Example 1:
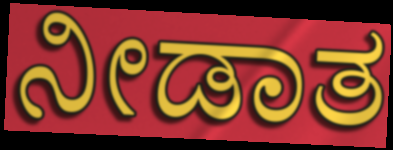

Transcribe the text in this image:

ನೀಡಾತ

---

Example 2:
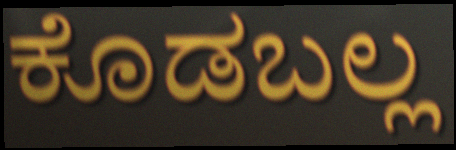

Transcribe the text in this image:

ಕೊಡಬಲ್ಲ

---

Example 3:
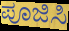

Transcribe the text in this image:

ಪೂಜಿಸಿ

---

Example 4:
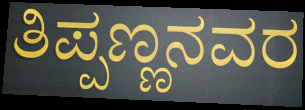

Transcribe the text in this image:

ತಿಪ್ಪಣ್ಣನವರ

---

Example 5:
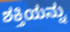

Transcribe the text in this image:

ಶಕ್ತಿಯನ್ನು